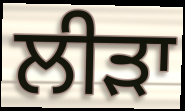
ਲੀੜਾ